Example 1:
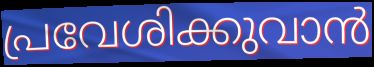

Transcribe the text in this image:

പ്രവേശിക്കുവാൻ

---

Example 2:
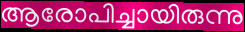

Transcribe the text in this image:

ആരോപിച്ചായിരുന്നു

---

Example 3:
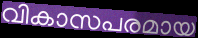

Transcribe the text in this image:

വികാസപരമായ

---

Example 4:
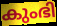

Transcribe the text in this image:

കുംഭി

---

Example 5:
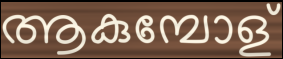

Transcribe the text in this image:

ആകുമ്പോള്